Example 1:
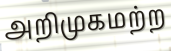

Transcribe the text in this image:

அறிமுகமற்ற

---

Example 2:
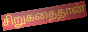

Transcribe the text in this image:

சிறுகதைதான்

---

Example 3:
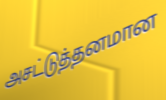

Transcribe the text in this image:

அசட்டுத்தனமான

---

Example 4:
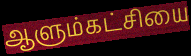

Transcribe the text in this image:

ஆளும்கட்சியை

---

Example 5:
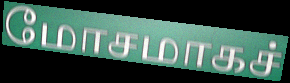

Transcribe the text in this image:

மோசமாகச்